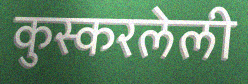
कुस्करलेली